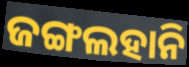
ଜଙ୍ଗଲହାନି